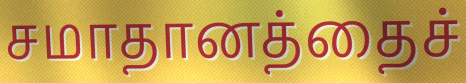
சமாதானத்தைச்